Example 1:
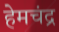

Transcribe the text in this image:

हेमचंद्र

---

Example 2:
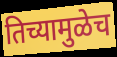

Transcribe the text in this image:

तिच्यामुळेच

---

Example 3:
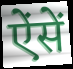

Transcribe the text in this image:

ऐंसें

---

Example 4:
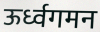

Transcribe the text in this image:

ऊर्ध्वगमन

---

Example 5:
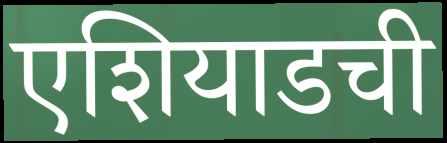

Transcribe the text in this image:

एशियाडची